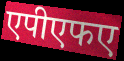
एपीएफए